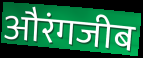
औरंगजीब